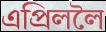
এপ্ৰিললৈ